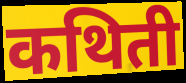
कथिती